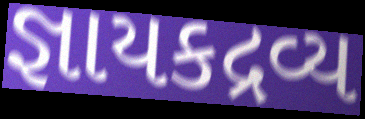
જ્ઞાયકદ્રવ્ય